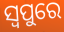
ସ୍ୱପୁରେ